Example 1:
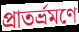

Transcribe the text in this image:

প্রাতর্ভ্রমণে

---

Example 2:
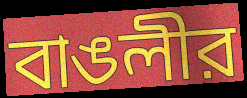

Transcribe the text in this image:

বাঙলীর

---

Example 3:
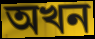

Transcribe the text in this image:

অখন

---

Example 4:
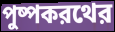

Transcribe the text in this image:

পুষ্পকরথের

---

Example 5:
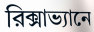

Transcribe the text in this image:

রিক্সাভ্যানে